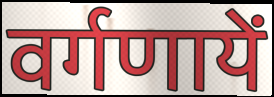
वर्गणायें